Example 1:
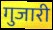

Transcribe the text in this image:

गुजारी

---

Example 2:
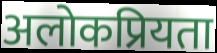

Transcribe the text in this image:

अलोकप्रियता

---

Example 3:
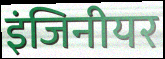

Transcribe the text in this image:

इंजिनीयर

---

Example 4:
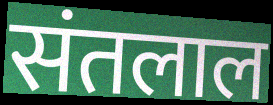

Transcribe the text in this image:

संतलाल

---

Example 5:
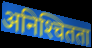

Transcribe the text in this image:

अनिश्‍चितता